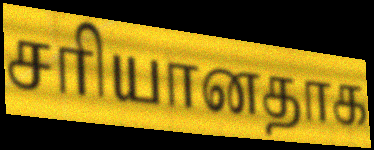
சரியானதாக